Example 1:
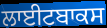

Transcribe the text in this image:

ਲਾਈਟਬਾਕਸ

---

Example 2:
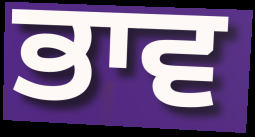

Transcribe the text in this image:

ਭਾਵ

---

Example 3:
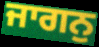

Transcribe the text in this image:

ਜਾਗਨੁ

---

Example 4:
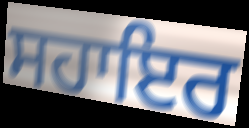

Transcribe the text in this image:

ਸਹਾਇਰ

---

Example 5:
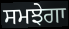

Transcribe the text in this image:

ਸਮਝੇਗਾ